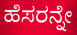
ಹೆಸರನ್ನೇ